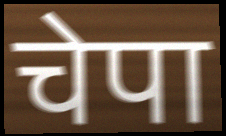
चेपा